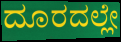
ದೂರದಲ್ಲೇ